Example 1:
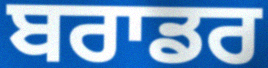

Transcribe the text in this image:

ਬਰਾਡਰ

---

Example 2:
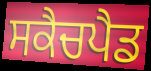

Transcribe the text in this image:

ਸਕੈਚਪੈਡ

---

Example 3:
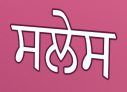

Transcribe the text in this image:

ਸਲੇਸ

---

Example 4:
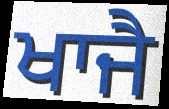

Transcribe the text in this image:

ਖਾਜੈ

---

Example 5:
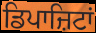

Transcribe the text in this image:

ਡਿਪਾਜ਼ਿਟਾਂ